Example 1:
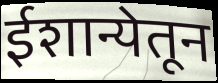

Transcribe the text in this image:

ईशान्येतून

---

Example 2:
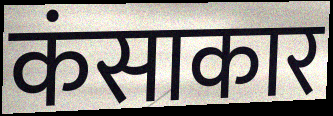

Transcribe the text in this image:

कंसाकार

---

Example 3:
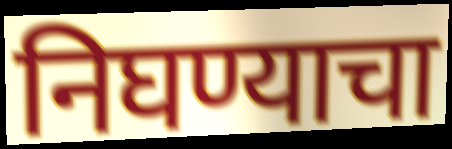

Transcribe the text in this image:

निघण्याचा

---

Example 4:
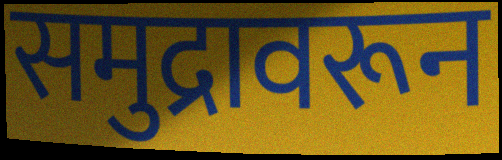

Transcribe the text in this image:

समुद्रावरून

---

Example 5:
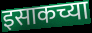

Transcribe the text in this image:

इसाकच्या